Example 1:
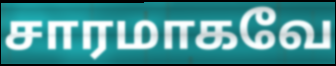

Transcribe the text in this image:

சாரமாகவே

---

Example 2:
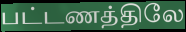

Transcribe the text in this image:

பட்டணத்திலே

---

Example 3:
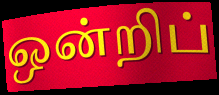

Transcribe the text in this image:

ஒன்றிப்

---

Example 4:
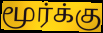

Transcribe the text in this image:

மூர்க்கு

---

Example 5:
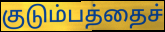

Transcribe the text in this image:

குடும்பத்தைச்